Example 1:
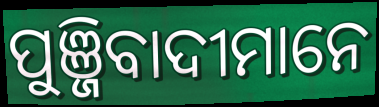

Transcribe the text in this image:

ପୁଞ୍ଜିବାଦୀମାନେ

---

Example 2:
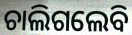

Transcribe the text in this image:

ଚାଲିଗଲେବି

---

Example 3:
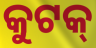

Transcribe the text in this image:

କୁଟକ୍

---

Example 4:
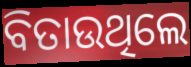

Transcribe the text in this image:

ବିତାଉଥିଲେ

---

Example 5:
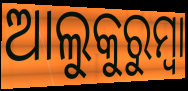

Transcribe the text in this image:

ଆଲୁକୁରୁମ୍ବା